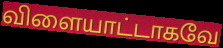
விளையாட்டாகவே